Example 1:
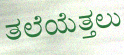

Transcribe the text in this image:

ತಲೆಯೆತ್ತಲು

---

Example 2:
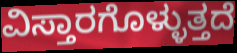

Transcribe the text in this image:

ವಿಸ್ತಾರಗೊಳ್ಳುತ್ತದೆ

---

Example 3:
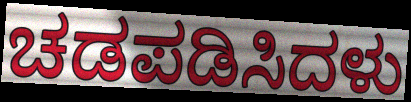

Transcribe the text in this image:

ಚಡಪಡಿಸಿದಳು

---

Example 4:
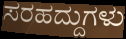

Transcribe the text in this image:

ಸರಹದ್ದುಗಳು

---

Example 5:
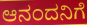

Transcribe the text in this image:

ಆನಂದನಿಗೆ